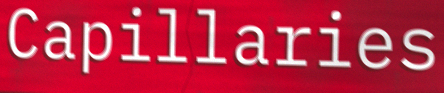
Capillaries